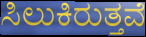
ಸಿಲುಕಿರುತ್ತವೆ